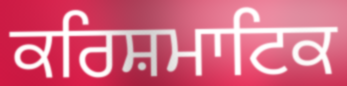
ਕਰਿਸ਼ਮਾਟਿਕ